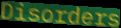
Disorders